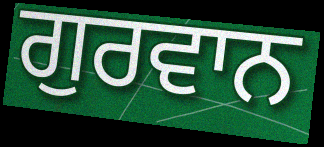
ਗੁਰਵਾਨ